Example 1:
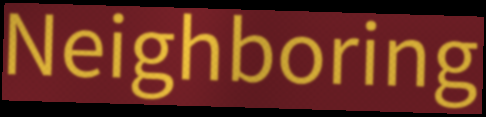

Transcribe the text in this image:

Neighboring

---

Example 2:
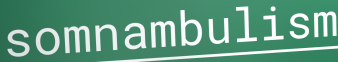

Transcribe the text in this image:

somnambulism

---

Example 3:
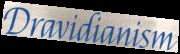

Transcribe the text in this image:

Dravidianism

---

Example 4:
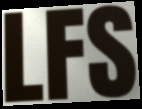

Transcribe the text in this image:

LFS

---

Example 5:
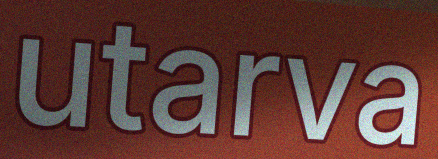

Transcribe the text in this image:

utarva